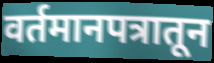
वर्तमानपत्रातून